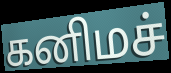
கனிமச்